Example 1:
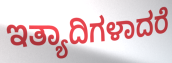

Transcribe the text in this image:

ಇತ್ಯಾದಿಗಳಾದರೆ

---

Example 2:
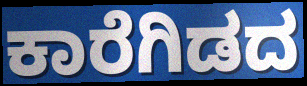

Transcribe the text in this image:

ಕಾರೆಗಿಡದ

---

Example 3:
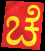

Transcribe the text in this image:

ಚೆ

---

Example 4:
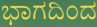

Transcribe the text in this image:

ಭಾಗದಿಂದ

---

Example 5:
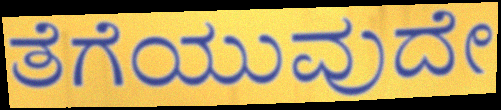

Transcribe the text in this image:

ತೆಗೆಯುವುದೇ